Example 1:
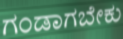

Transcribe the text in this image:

ಗಂಡಾಗಬೇಕು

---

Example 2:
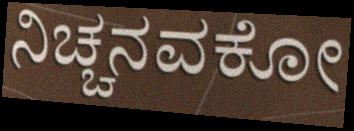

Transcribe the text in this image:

ನಿಚ್ಚನವಕೋ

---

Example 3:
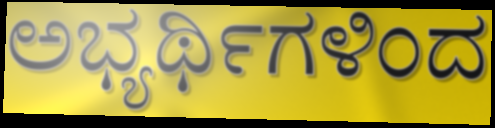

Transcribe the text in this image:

ಅಭ್ಯರ್ಥಿಗಳಿಂದ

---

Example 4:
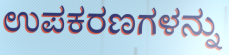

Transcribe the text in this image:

ಉಪಕರಣಗಳನ್ನು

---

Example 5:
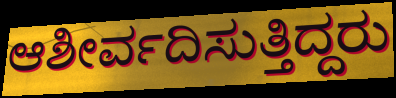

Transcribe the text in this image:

ಆಶೀರ್ವದಿಸುತ್ತಿದ್ದರು